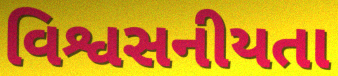
વિશ્વસનીયતા